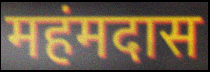
महंमदास